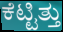
ಕೆಟ್ಟಿತ್ತು